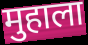
मुहाला